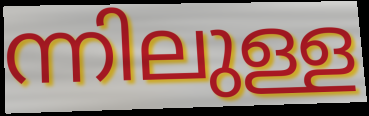
ന്നിലുള്ള